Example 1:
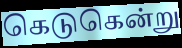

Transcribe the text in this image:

கெடுகென்று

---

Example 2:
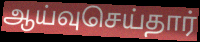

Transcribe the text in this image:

ஆய்வுசெய்தார்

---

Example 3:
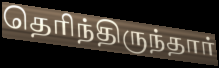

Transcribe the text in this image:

தெரிந்திருந்தார்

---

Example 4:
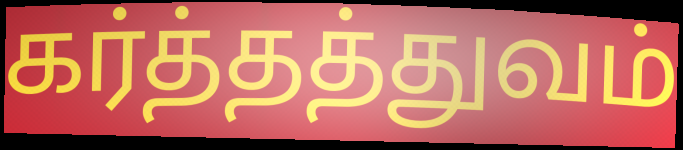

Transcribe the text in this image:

கர்த்தத்துவம்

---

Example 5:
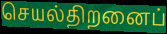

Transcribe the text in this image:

செயல்திறனைப்